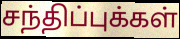
சந்திப்புக்கள்